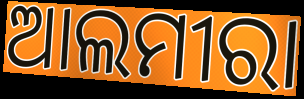
ଆଲମୀରା